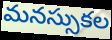
మనస్సుకల